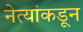
नेत्यांकडून